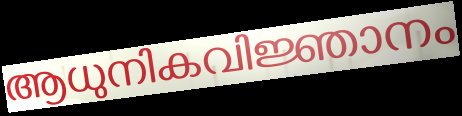
ആധുനികവിജ്ഞാനം